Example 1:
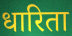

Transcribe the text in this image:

धारिता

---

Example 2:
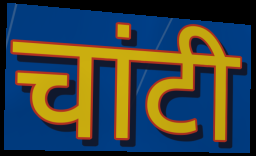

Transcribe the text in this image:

चांटी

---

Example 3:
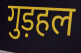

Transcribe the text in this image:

गुड़हल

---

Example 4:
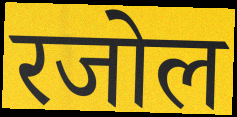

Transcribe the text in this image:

रजोल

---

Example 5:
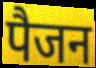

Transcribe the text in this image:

पैजन